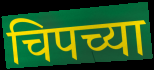
चिपच्या